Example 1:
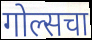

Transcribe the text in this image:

गोल्सचा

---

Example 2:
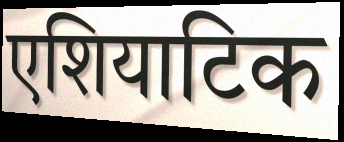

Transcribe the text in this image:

एशियाटिक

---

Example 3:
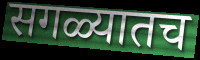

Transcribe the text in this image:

सगळ्यातच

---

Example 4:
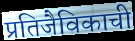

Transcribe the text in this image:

प्रतिजैविकाची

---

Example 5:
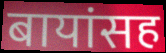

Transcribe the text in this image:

बायांसह